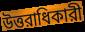
উত্তরাধিকারী